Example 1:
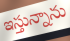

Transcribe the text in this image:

ఇస్తున్నాను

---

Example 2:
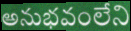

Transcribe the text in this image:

అనుభవంలేని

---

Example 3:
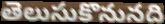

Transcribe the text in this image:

తెలుసుకొనునది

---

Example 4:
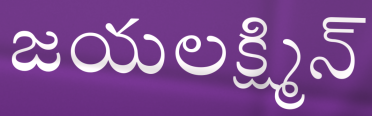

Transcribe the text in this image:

జయలక్ష్మిన్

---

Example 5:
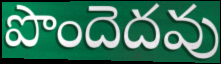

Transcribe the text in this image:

పొందెదవు